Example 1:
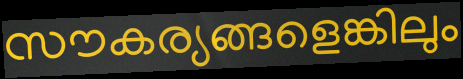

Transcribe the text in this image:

സൗകര്യങ്ങളെങ്കിലും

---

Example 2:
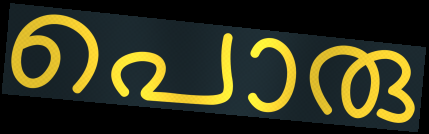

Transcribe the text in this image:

പൊരു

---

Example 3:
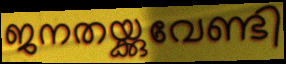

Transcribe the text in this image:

ജനതയ്ക്കുവേണ്ടി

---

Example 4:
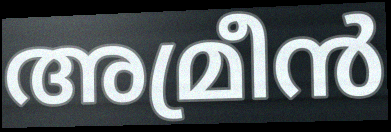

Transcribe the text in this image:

അമ്രീൻ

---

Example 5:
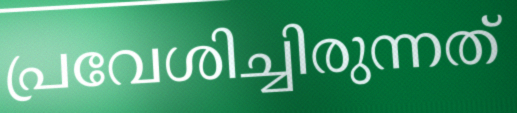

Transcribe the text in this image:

പ്രവേശിച്ചിരുന്നത്